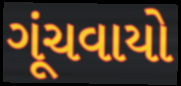
ગૂંચવાયો